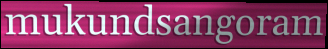
mukundsangoram